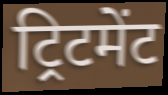
ट्रिटमेंट